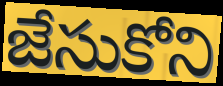
జేసుకోని